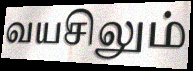
வயசிலும்